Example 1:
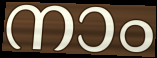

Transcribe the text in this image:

നാം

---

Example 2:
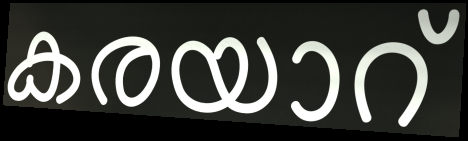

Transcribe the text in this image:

കരയാറ്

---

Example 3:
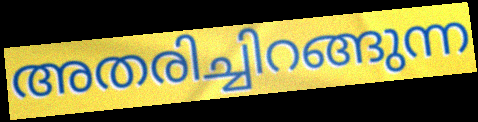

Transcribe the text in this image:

അതരിച്ചിറങ്ങുന്ന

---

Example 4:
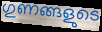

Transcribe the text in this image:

ഗുണങ്ങളുടെ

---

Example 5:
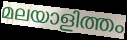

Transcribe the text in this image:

മലയാളിത്തം